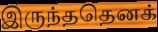
இருந்ததெனக்